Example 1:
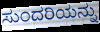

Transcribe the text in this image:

ಸುಂದರಿಯನ್ನು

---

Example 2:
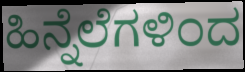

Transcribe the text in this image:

ಹಿನ್ನೆಲೆಗಳಿಂದ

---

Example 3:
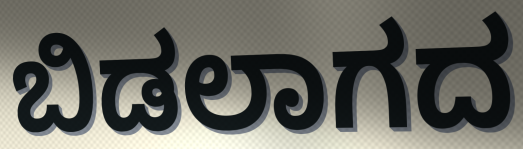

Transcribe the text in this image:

ಬಿಡಲಾಗದ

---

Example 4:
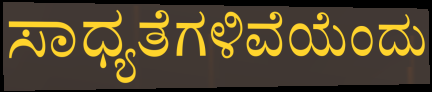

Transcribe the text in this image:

ಸಾಧ್ಯತೆಗಳಿವೆಯೆಂದು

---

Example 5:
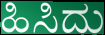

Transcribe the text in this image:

ಹಿಸಿದು